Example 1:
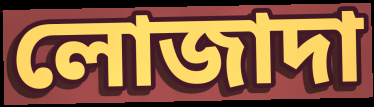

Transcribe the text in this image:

লোজাদা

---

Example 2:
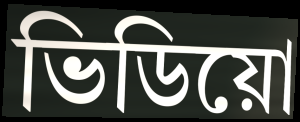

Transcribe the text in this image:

ভিডিয়ো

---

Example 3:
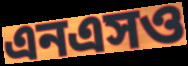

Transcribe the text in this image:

এনএসও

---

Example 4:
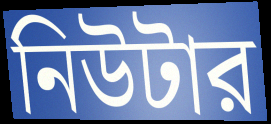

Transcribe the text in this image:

নিউটার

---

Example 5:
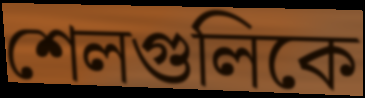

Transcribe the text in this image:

শেলগুলিকে